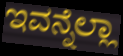
ಇವನ್ನೆಲ್ಲಾ